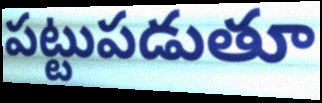
పట్టుపడుతూ